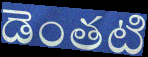
డెంతటి